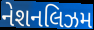
નેશનલિઝમ